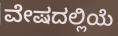
ವೇಷದಲ್ಲಿಯೆ